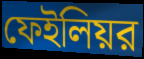
ফেইলিয়র